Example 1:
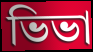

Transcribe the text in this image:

ভিভা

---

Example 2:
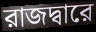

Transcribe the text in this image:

রাজদ্বারে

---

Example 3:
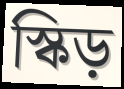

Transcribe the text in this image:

স্কিড়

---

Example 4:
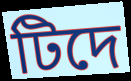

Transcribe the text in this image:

টিদে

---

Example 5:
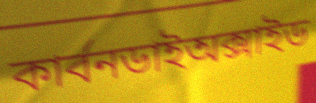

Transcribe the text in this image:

কার্বনডাইঅক্সাইড